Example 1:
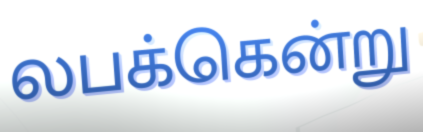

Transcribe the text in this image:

லபக்கென்று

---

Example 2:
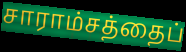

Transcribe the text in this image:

சாராம்சத்தைப்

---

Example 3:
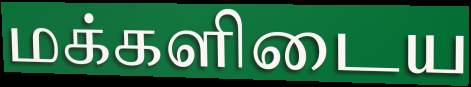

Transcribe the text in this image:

மக்களிடைய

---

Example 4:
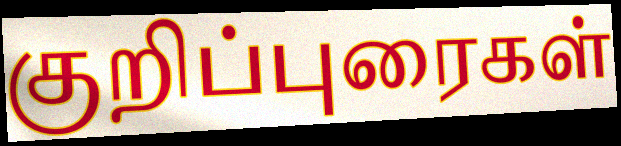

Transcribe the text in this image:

குறிப்புரைகள்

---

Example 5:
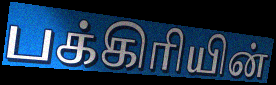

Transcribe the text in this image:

பக்கிரியின்